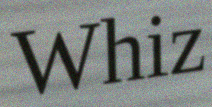
Whiz